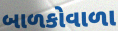
બાળકોવાળા